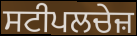
ਸਟੀਪਲਚੇਜ਼